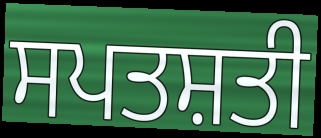
ਸਪਤਸ਼ਤੀ